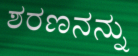
ಶರಣನನ್ನು